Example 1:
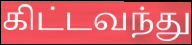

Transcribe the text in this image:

கிட்டவந்து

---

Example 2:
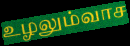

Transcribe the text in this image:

உழலும்வாச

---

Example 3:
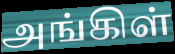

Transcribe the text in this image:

அங்கிள்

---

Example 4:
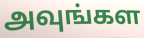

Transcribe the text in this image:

அவுங்கள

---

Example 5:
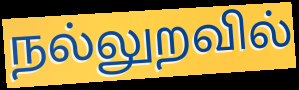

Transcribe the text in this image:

நல்லுறவில்